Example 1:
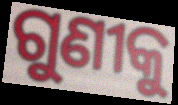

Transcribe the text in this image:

ଗୁଣୀକୁ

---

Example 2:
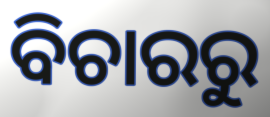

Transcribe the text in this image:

ବିଚାରରୁ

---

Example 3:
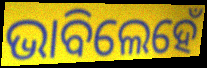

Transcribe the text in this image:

ଭାବିଲେହେଁ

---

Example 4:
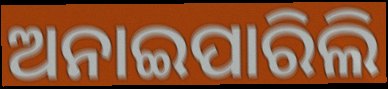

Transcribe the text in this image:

ଅନାଇପାରିଲି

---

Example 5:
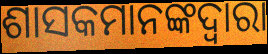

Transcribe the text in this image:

ଶାସକମାନଙ୍କଦ୍ୱାରା